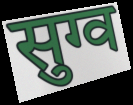
सुग्व